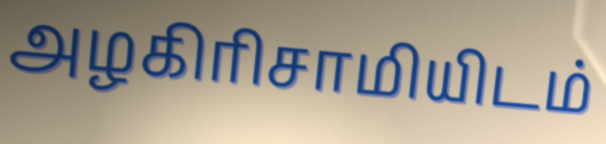
அழகிரிசாமியிடம்